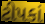
ટીપકાં